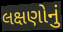
લક્ષણોનું